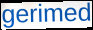
gerimed